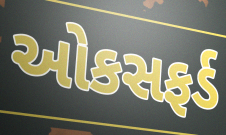
ઓકસફર્ડ